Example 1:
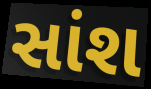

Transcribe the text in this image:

સાંશ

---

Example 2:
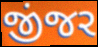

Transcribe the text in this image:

જીંજર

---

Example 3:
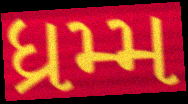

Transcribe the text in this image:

ધ્રમ્મ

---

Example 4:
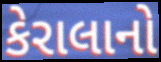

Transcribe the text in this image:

કેરાલાનો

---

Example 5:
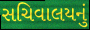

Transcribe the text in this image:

સચિવાલયનું